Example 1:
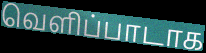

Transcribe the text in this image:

வெளிப்பாடாக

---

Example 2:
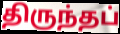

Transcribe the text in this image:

திருந்தப்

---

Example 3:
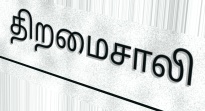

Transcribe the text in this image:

திறமைசாலி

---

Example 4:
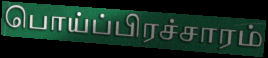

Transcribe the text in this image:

பொய்ப்பிரச்சாரம்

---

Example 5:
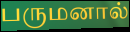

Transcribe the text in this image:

பருமனால்